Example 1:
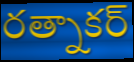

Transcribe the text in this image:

రత్నాకర్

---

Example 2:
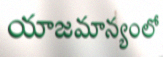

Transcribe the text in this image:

యాజమాన్యంలో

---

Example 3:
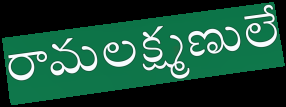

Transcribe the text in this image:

రామలక్ష్మణులే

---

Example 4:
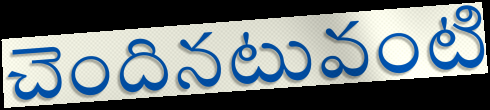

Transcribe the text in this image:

చెందినటువంటి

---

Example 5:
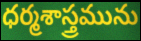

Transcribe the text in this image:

ధర్మశాస్త్రమును